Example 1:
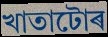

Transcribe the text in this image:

খাতাটোৰ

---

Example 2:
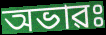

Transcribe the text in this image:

অভাৱঃ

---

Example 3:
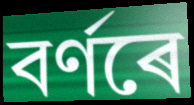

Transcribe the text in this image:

বৰ্ণৰে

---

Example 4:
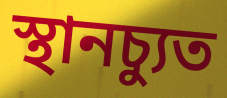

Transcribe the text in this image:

স্থানচ্যুত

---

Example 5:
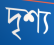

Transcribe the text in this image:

দৃশ্য